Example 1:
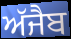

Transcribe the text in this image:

ਅੱਜੈਬ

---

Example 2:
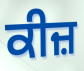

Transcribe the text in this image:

ਕੀਜ਼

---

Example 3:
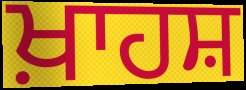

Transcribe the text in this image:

ਖ਼ਾਹਸ਼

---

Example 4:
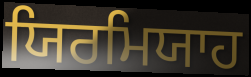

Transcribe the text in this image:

ਯਿਰਮਿਯਾਹ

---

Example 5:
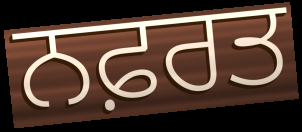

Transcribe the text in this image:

ਨਫ਼ਰਤ